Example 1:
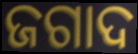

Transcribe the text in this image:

ଜଗାଦ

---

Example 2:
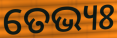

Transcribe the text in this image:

ତେଭ୍ୟଃ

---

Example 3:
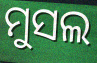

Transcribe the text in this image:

ମୁସଲ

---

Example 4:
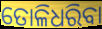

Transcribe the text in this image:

ତୋଳିଧରିବା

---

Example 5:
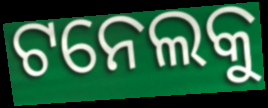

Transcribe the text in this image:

ଟନେଲକୁ